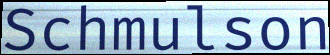
Schmulson